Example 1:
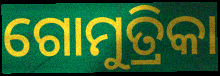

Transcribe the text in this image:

ଗୋମୁତ୍ରିକା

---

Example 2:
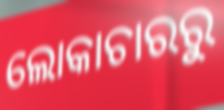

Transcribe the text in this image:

ଲୋକାଚାରରୁ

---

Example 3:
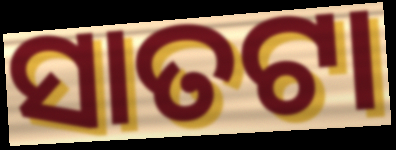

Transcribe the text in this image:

ସାତଟା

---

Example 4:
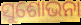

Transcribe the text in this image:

ସୁଶୋଭନା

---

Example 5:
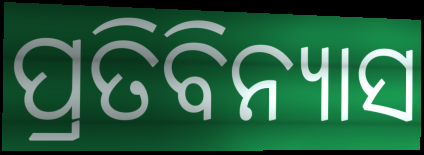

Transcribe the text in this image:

ପ୍ରତିବିନ୍ୟାସ